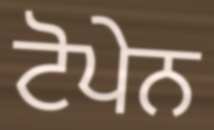
ਟੋਪੇਨ